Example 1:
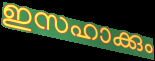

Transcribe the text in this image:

ഇസഹാക്കും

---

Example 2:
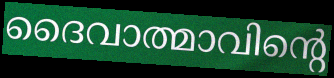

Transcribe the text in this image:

ദൈവാത്മാവിന്റെ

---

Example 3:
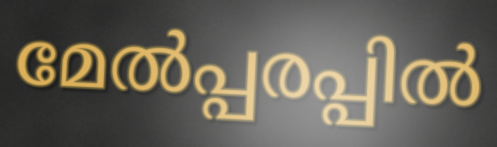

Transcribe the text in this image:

മേൽപ്പരപ്പിൽ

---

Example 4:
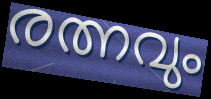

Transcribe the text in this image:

രത്നവും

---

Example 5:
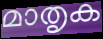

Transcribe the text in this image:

മാതൃക